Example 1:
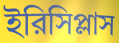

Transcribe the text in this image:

ইরিসিপ্লাস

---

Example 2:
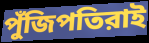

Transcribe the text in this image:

পুঁজিপতিরাই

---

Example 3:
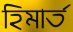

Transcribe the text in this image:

হিমার্ত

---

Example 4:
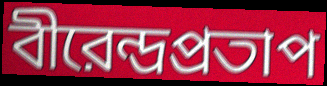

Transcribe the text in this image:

বীরেন্দ্রপ্রতাপ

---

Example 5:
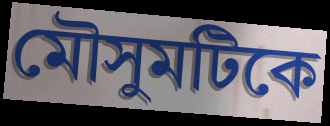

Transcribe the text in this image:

মৌসুমটিকে